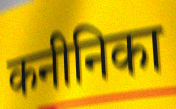
कनीनिका